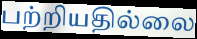
பற்றியதில்லை